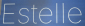
Estelle